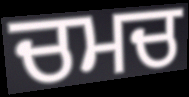
ਚਮਚ